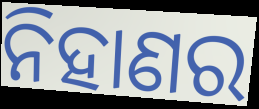
ନିହାଣର